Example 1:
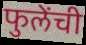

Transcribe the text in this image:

फुलेंची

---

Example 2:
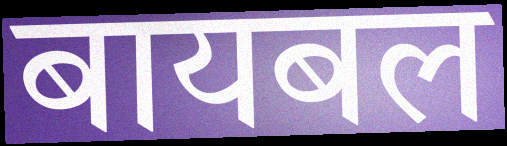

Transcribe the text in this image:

बायबल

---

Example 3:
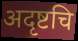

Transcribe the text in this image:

अदृष्टचि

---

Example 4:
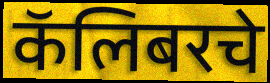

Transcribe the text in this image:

कॅलिबरचे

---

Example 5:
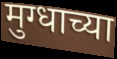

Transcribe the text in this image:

मुग्धाच्या